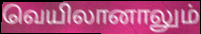
வெயிலானாலும்